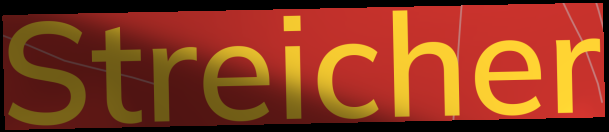
Streicher